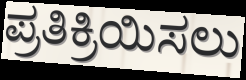
ಪ್ರತಿಕ್ರಿಯಿಸಲು